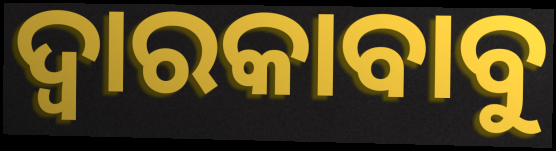
ଦ୍ୱାରକାବାବୁ